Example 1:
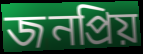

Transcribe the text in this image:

জনপ্রিয়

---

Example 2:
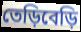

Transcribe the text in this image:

তেড়িবেড়ি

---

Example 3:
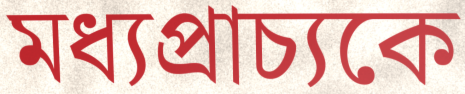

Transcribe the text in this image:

মধ্যপ্রাচ্যকে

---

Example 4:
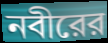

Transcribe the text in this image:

নবীরের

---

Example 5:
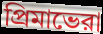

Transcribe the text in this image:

প্রিমাভেরা